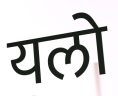
यलो